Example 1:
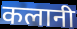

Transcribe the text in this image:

कलानी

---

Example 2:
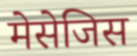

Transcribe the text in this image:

मेसेजिस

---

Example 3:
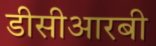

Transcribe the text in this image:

डीसीआरबी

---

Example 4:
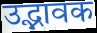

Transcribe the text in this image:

उद्भावक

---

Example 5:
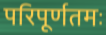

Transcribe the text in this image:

परिपूर्णतमः